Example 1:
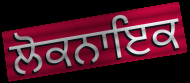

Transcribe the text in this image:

ਲੋਕਨਾਇਕ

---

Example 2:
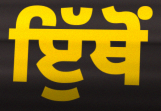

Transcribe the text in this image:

ਇੁੱਥੋਂ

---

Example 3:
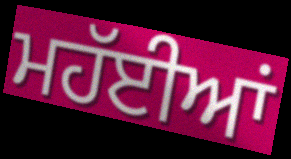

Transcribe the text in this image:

ਮਹੱਈਆਂ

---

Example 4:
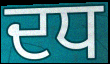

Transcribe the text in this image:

ਦਧ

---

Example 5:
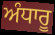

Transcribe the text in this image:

ਅੰਧਾਰੂ